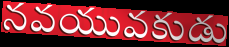
నవయువకుడు